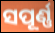
ସପୂର୍ଣ୍ଣ